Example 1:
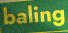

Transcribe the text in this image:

baling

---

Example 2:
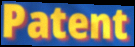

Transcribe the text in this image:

Patent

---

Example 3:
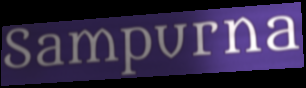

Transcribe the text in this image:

Sampurna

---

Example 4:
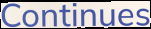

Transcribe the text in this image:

Continues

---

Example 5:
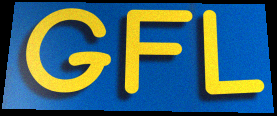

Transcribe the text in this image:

GFL